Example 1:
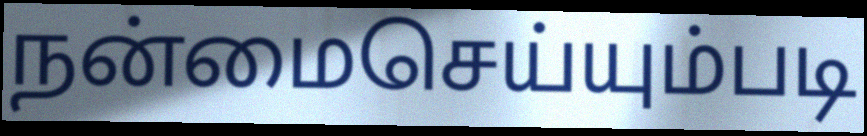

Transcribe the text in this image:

நன்மைசெய்யும்படி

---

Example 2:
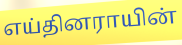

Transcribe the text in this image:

எய்தினராயின்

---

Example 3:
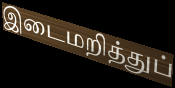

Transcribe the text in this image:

இடைமறித்துப்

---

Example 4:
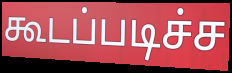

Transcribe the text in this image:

கூடப்படிச்ச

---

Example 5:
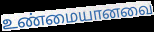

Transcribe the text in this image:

உண்மையானவை